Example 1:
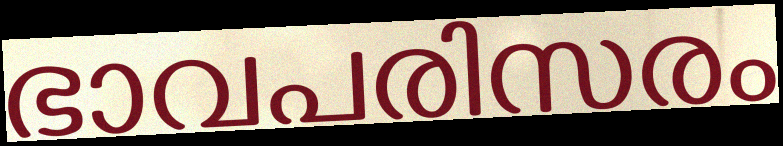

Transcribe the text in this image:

ഭാവപരിസരം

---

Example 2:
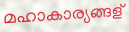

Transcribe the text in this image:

മഹാകാര്യങ്ങള്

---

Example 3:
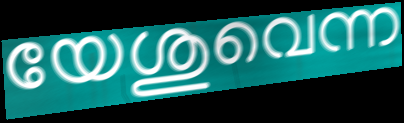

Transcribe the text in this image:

യേശുവെന്ന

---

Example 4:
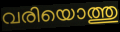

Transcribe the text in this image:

വരിയൊത്തു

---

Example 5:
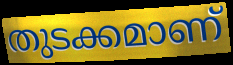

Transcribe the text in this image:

തുടക്കമാണ്